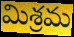
మిశ్రమ